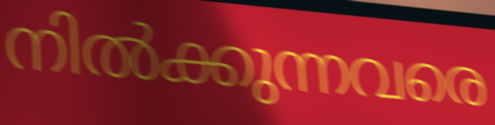
നിൽക്കുന്നവരെ